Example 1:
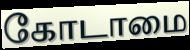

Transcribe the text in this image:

கோடாமை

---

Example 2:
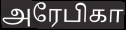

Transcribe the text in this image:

அரேபிகா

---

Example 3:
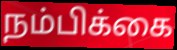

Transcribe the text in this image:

நம்பிக்கை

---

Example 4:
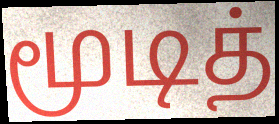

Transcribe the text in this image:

மூடித்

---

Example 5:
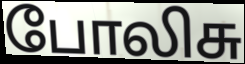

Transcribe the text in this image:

போலிசு